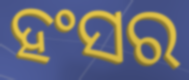
ହଂସର